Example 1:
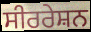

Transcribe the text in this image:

ਸੀਰਰੇਸ਼ਨ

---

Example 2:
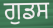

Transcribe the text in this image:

ਗੁਡਸ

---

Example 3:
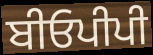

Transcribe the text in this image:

ਬੀਓਪੀਪੀ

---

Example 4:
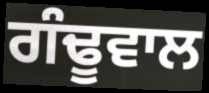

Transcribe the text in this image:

ਗੰਢੂਵਾਲ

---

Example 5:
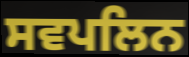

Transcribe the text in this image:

ਸਵਪਲਿਨ